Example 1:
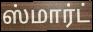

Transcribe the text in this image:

ஸ்மார்ட்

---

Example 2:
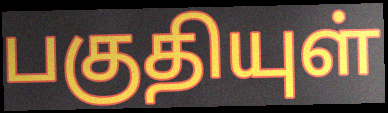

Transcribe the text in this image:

பகுதியுள்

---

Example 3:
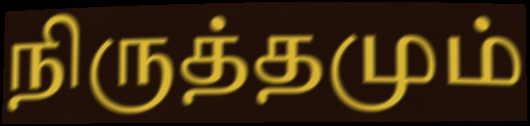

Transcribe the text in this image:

நிருத்தமும்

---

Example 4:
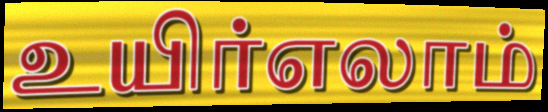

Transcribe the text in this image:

உயிர்எலாம்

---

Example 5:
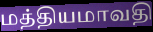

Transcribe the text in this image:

மத்தியமாவதி